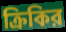
ক্রিকির